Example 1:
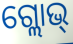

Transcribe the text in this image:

ଗ୍ଲୋଭ୍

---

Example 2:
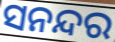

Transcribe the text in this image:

ସନନ୍ଦର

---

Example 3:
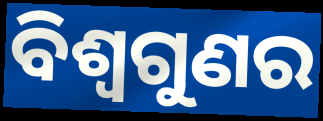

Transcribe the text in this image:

ବିଶ୍ୱଗୁଣର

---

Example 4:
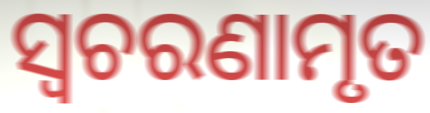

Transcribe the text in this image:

ସ୍ଵଚରଣାମୃତ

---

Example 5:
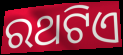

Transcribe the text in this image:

ରଥଟିଏ